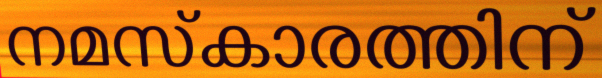
നമസ്‌കാരത്തിന്